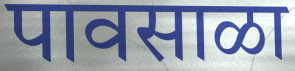
पावसाळा